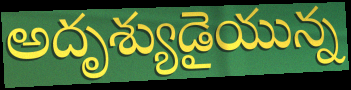
అదృశ్యుడైయున్న